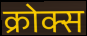
क्रोक्स